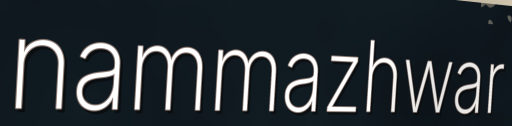
nammazhwar